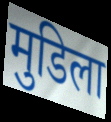
मुडिला